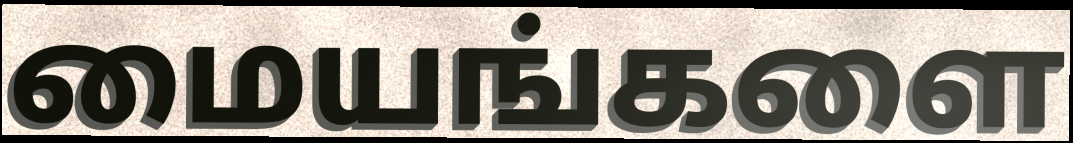
மையங்களை